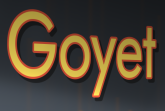
Goyet